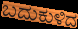
ಬದುಕುಳಿದ